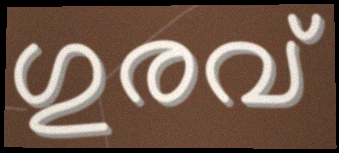
ഗുരവ്